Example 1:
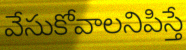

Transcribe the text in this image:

వేసుకోవాలనిపిస్తే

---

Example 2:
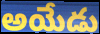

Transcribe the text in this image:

అయేడు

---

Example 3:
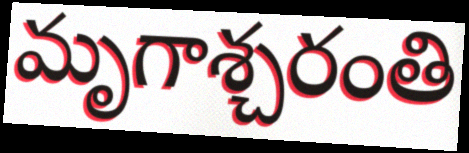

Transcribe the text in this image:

మృగాశ్చరంతి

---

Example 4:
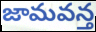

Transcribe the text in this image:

జామవన్త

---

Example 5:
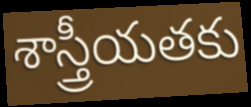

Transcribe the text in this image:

శాస్త్రీయతకు